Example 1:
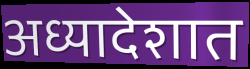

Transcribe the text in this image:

अध्यादेशात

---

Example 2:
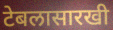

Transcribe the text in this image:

टेबलासारखी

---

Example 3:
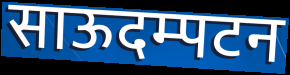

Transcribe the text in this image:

साऊदम्पटन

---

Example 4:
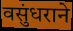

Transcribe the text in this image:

वसुंधराने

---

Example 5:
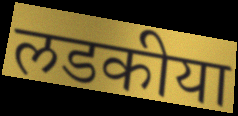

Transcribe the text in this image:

लडकीया